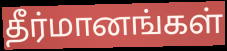
தீர்மானங்கள்